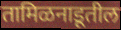
तामिळनाडूतील